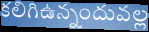
కలిగిఉన్నందువల్ల